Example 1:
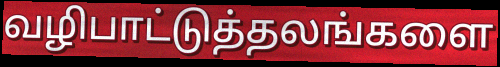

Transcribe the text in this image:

வழிபாட்டுத்தலங்களை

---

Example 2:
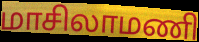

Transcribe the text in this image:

மாசிலாமணி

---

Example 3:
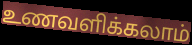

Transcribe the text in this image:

உணவளிக்கலாம்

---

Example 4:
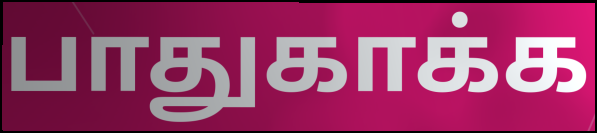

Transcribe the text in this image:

பாதுகாக்க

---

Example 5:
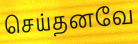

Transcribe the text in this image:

செய்தனவே